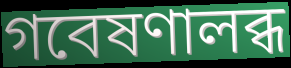
গবেষণালব্ধ